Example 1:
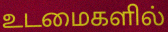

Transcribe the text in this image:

உடமைகளில்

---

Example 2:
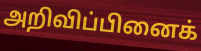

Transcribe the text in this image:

அறிவிப்பினைக்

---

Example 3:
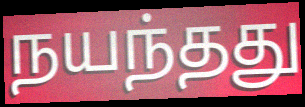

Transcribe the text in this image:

நயந்தது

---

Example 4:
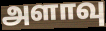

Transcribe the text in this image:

அளாவு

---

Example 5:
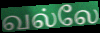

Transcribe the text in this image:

வல்லே